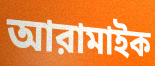
আরামাইক